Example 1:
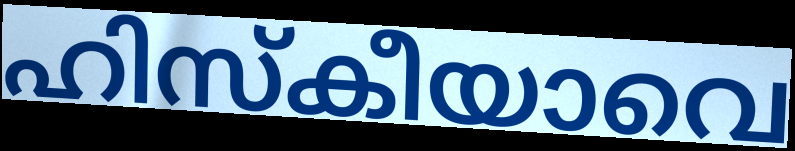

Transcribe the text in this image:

ഹിസ്കീയാവെ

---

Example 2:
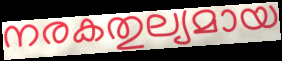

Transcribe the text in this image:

നരകതുല്യമായ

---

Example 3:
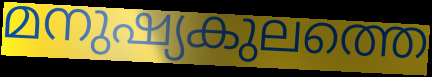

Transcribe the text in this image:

മനുഷ്യകുലത്തെ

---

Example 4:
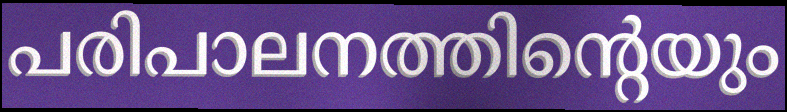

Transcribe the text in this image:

പരിപാലനത്തിന്റെയും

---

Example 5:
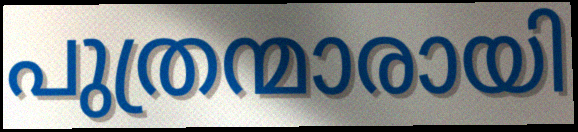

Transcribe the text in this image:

പുത്രന്മാരായി